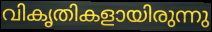
വികൃതികളായിരുന്നു